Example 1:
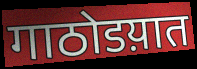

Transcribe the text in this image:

गाठोडय़ात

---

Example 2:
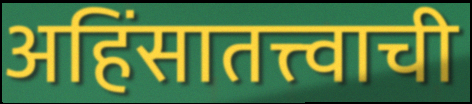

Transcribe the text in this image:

अहिंसातत्त्वाची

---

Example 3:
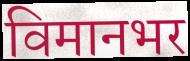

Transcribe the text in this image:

विमानभर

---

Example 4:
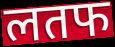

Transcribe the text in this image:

लतफ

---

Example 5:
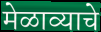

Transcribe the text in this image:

मेळाव्याचे